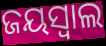
ଜୟସ୍ୱାଲ